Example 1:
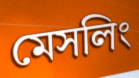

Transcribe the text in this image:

মেসলিং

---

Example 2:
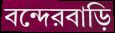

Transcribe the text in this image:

বন্দেরবাড়ি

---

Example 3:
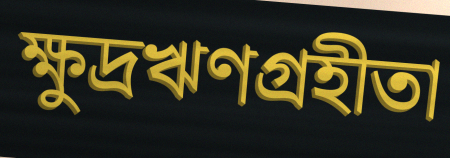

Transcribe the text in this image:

ক্ষুদ্রঋণগ্রহীতা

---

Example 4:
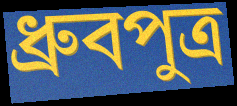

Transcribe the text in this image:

ধ্রুবপুত্র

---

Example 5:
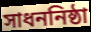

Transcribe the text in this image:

সাধননিষ্ঠা